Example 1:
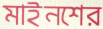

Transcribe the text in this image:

মাইনশের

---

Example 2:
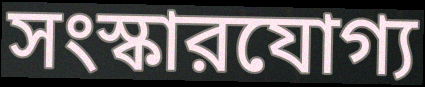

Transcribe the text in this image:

সংস্কারযোগ্য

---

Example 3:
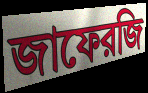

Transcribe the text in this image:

জাফেরজি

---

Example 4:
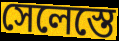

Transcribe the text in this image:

সেলেস্তে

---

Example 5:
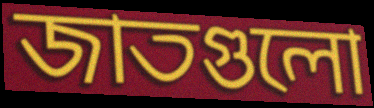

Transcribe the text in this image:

জাতগুলো